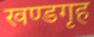
खण्डगृह